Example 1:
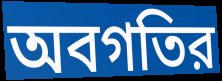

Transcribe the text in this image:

অবগতির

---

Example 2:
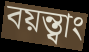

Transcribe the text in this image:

বয়ন্ত্বাং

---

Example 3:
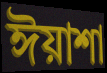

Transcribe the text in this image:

ঈয়াশা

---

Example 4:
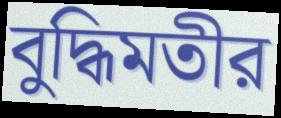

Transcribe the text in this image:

বুদ্ধিমতীর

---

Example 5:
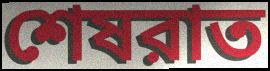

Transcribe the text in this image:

শেষরাত